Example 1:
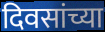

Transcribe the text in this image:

दिवसांच्या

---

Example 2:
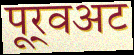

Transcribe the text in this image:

पूर्वअट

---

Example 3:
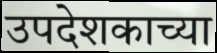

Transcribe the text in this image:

उपदेशकाच्या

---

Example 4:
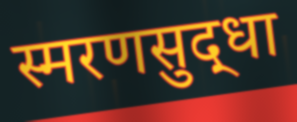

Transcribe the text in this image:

स्मरणसुद्धा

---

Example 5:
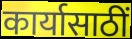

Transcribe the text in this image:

कार्यासाठीं